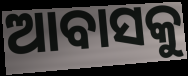
ଆବାସକୁ